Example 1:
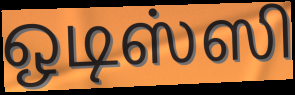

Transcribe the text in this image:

ஒடிஸ்ஸி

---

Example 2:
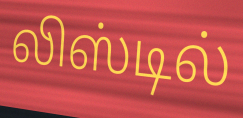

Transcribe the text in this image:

லிஸ்டில்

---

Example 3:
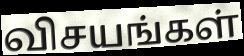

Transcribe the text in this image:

விசயங்கள்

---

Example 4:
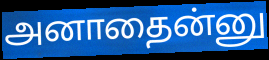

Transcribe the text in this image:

அனாதைன்னு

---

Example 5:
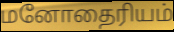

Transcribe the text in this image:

மனோதைரியம்